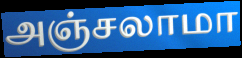
அஞ்சலாமா